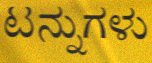
ಟನ್ನುಗಳು